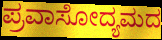
ಪ್ರವಾಸೋದ್ಯಮದ